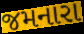
જમનારા